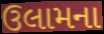
ઉલામના